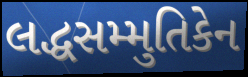
લદ્ધસમ્મુતિકેન